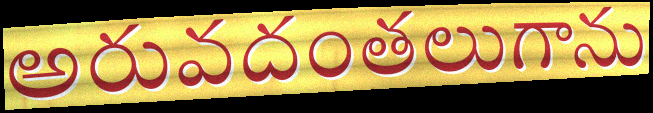
అరువదంతలుగాను